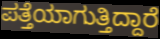
ಪತ್ತೆಯಾಗುತ್ತಿದ್ದಾರೆ